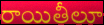
రాయితీలూ